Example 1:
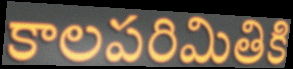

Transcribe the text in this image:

కాలపరిమితికి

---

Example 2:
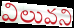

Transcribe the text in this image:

విలువని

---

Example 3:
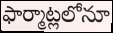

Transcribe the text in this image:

ఫార్మాట్లలోనూ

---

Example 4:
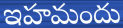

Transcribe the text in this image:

ఇహమందు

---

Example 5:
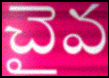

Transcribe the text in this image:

చైవ